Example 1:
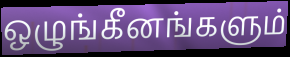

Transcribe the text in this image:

ஒழுங்கீனங்களும்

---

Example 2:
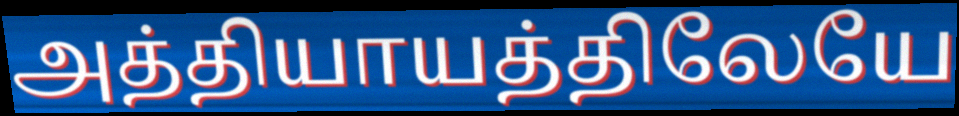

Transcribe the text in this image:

அத்தியாயத்திலேயே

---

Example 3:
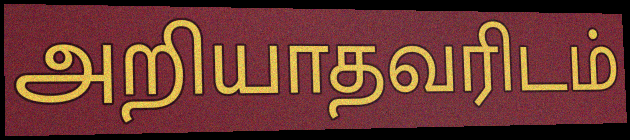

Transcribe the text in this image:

அறியாதவரிடம்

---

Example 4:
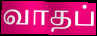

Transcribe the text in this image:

வாதப்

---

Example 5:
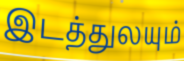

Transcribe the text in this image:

இடத்துலயும்